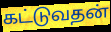
கட்டுவதன்